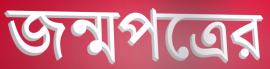
জন্মপত্রের